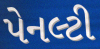
પેનલ્ટી